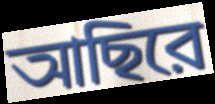
আছিরে